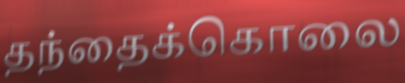
தந்தைக்கொலை